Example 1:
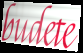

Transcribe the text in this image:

budete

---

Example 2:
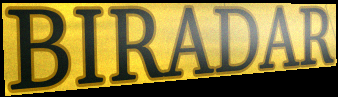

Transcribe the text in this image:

BIRADAR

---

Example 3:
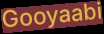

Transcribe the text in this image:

Gooyaabi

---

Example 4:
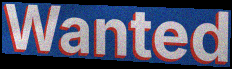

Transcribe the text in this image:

Wanted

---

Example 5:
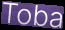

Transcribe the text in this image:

Toba